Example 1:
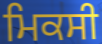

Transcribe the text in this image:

ਮਿਕਸੀ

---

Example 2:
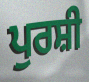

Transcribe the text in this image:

ਪੁਰਸ਼ੀ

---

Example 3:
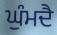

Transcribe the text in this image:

ਘੁੰਮਦੈ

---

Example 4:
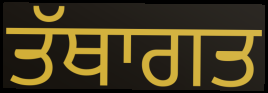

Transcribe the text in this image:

ਤੱਥਾਗਤ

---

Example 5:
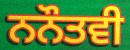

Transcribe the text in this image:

ਨਨੌਤਵੀ